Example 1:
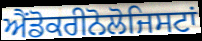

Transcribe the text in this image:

ਐਂਡੋਕਰੀਨੋਲੋਜਿਸਟਾਂ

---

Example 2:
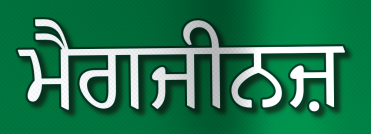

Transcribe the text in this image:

ਮੈਗਜੀਨਜ਼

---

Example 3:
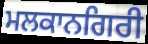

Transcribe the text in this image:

ਮਲਕਾਨਗਿਰੀ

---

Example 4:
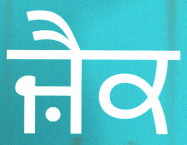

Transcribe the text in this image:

ਜ਼ੈਕ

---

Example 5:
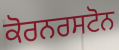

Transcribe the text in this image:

ਕੋਰਨਰਸਟੋਨ